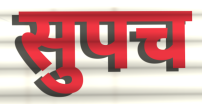
सुपच